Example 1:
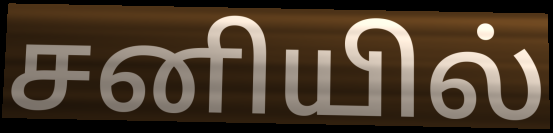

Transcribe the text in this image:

சனியில்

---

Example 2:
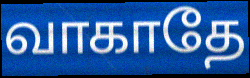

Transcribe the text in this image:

வாகாதே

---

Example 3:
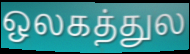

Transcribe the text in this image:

ஒலகத்துல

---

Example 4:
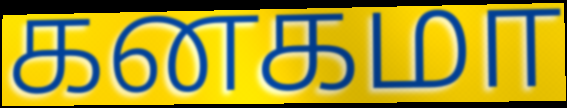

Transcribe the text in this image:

கனகமா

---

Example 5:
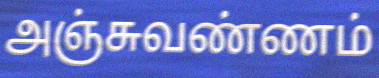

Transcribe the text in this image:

அஞ்சுவண்ணம்